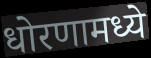
धोरणामध्ये